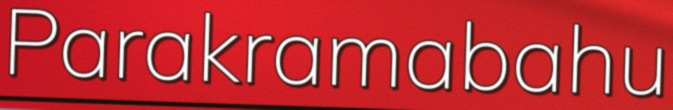
Parakramabahu